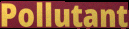
Pollutant